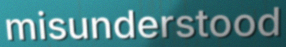
misunderstood